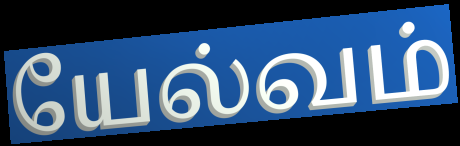
யேல்வம்